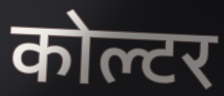
कोल्टर